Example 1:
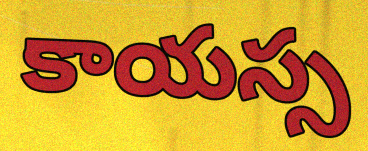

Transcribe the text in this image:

కాయస్స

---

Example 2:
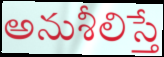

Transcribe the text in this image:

అనుశీలిస్తే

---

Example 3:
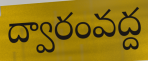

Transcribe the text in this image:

ద్వారంవద్ద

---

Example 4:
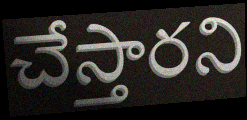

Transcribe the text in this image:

చేస్తారని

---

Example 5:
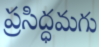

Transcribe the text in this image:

ప్రసిద్ధమగు